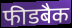
फीडबैक